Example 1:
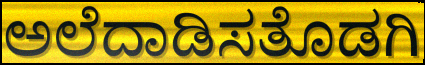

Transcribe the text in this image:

ಅಲೆದಾಡಿಸತೊಡಗಿ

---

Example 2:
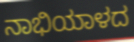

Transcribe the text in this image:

ನಾಭಿಯಾಳದ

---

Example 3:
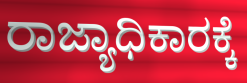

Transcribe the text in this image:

ರಾಜ್ಯಾಧಿಕಾರಕ್ಕೆ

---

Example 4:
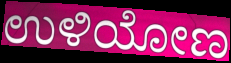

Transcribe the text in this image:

ಉಳಿಯೋಣ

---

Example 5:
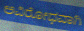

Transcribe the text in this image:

ಅವಿರೋಧವಾಗಿ